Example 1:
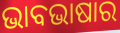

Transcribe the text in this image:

ଭାବଭାଷାର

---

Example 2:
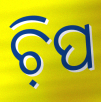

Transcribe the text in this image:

ଚ଼ିପ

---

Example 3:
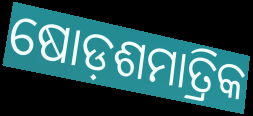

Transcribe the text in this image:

ଷୋଡ଼ଶମାତ୍ରିକ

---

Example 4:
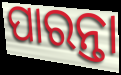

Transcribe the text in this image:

ପାରନ୍ତା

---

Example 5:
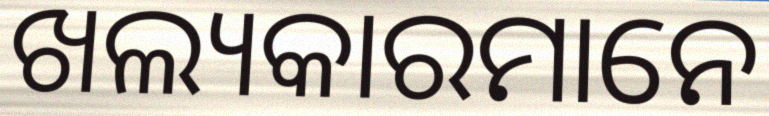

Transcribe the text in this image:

ଖଲ୍ୟକାରମାନେ